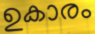
ഉകാരം